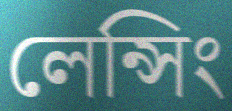
লেন্সিং